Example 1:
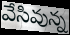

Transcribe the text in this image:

వేసివున్న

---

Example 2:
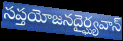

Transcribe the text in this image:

సప్తయోజనదైర్ఘ్యవాన్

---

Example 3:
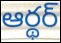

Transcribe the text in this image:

ఆర్థర్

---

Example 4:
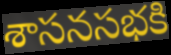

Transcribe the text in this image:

శాసనసభకి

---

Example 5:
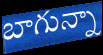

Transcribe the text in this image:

బాగున్నా